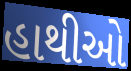
હાથીઓ